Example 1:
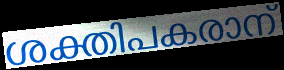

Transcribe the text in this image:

ശക്തിപകരാന്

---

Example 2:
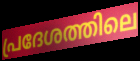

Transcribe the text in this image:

പ്രദേശത്തിലെ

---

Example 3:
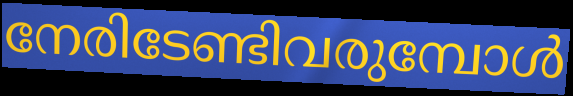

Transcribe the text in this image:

നേരിടേണ്ടിവരുമ്പോൾ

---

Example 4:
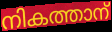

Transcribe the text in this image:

നികത്താന്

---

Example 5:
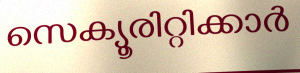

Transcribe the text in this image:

സെക്യൂരിറ്റിക്കാർ